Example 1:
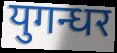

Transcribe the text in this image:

युगन्धर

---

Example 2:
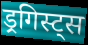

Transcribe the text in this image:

ड्रगिस्ट्स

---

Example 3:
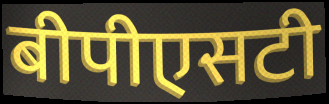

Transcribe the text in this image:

बीपीएसटी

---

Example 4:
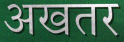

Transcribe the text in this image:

अखतर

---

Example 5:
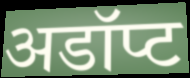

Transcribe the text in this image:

अडॉप्‍ट